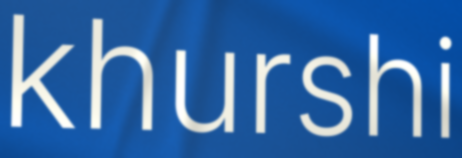
khurshi